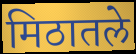
मिठातले